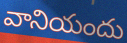
వానియందు